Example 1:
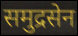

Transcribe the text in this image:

समुद्रसेन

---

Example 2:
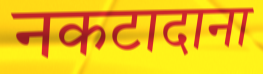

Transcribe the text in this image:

नकटादाना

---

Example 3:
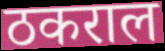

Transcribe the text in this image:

ठकराल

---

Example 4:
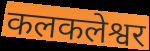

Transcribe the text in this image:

कलकलेश्वर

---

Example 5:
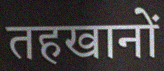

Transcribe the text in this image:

तहखानों